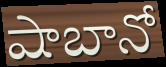
షాబానో